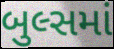
બુલ્સમાં